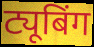
ट्यूबिंग